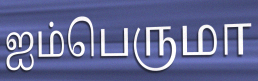
ஐம்பெருமா